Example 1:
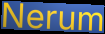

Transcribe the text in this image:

Nerum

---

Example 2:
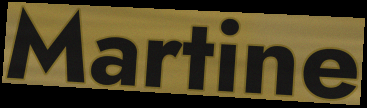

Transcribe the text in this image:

Martine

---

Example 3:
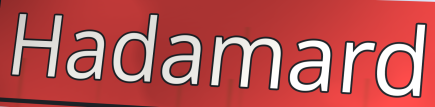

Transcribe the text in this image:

Hadamard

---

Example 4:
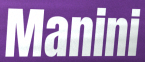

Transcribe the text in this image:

Manini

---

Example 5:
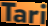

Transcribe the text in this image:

Tari